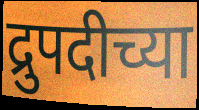
द्रुपदीच्या